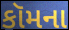
કૉમના